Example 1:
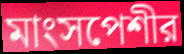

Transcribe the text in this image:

মাংসপেশীর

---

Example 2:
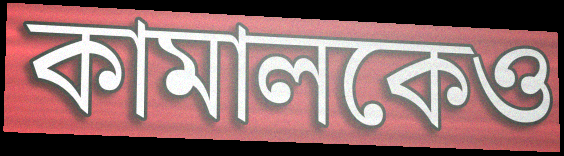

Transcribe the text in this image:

কামালকেও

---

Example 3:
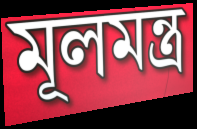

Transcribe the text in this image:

মূলমন্ত্র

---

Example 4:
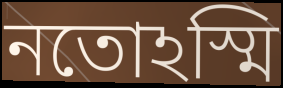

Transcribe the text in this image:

নতোঽস্মি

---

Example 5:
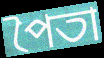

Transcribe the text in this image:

পৈতা